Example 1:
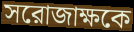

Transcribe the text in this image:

সরোজাক্ষকে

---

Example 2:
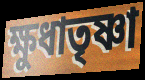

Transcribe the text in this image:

ক্ষুধাতৃষ্ণা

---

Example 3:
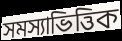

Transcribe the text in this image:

সমস্যাভিত্তিক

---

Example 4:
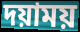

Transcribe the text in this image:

দয়াময়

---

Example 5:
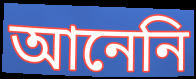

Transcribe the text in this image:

আনেনি